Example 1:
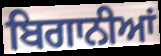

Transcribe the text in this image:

ਬਿਗਾਨੀਆਂ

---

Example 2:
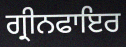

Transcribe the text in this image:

ਗ੍ਰੀਨਫਾਇਰ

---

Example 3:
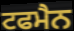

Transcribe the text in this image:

ਟਫਮੈਨ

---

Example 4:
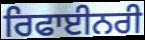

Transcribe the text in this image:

ਰਿਫਾਈਨਰੀ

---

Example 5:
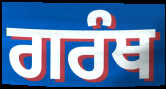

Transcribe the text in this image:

ਗਰੰਥ